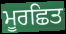
ਮੂਰਛਿਤ